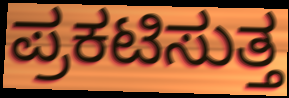
ಪ್ರಕಟಿಸುತ್ತ